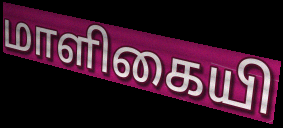
மாளிகையி